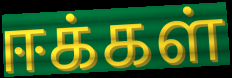
ஈக்கள்